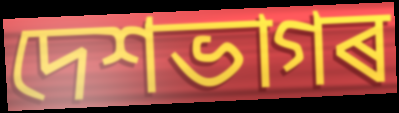
দেশভাগৰ